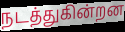
நடத்துகின்றன